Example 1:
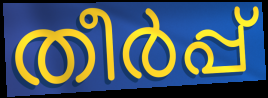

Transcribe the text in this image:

തീർപ്പ്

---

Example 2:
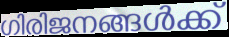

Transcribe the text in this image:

ഗിരിജനങ്ങൾക്ക്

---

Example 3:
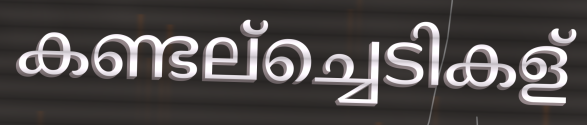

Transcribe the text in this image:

കണ്ടല്ച്ചെടികള്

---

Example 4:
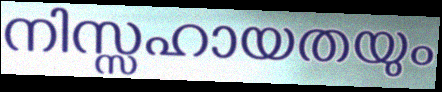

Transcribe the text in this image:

നിസ്സഹായതയും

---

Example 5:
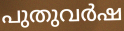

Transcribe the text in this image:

പുതുവർഷ